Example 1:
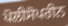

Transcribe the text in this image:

ਪੋਲੀਸੋਪਰੀਨ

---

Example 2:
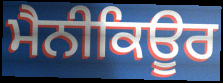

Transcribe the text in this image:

ਮੈਨੀਕਿਊਰ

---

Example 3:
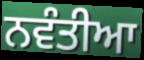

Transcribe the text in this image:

ਨਵੰਤੀਆ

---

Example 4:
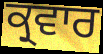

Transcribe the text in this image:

ਕ੍ਰਵਾਰ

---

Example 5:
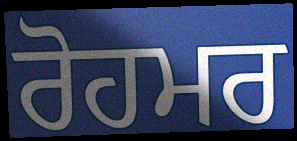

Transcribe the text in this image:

ਰੋਹਮਰ